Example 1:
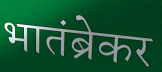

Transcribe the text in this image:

भातंब्रेकर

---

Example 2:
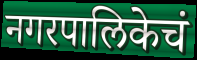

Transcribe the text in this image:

नगरपालिकेचं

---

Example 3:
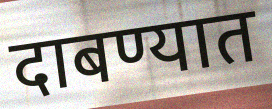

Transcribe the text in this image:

दाबण्यात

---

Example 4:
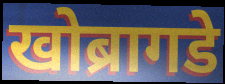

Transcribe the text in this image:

खोब्रागडे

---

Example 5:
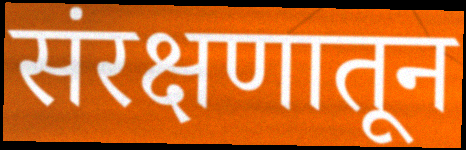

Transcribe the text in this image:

संरक्षणातून